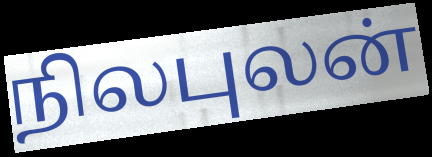
நிலபுலன்